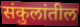
संकुलांतील